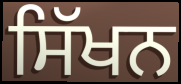
ਸਿੱਖਨ